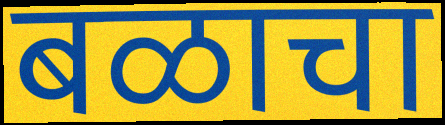
बळाचा